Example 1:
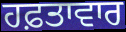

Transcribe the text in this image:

ਹਫ਼ਤਾਵਾਰ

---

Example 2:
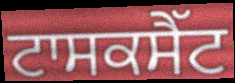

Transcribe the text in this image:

ਟਾਸਕਸੈੱਟ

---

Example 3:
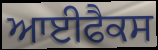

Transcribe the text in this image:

ਆਈਫੈਕਸ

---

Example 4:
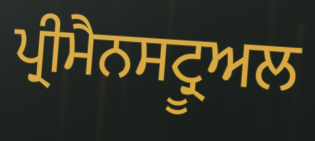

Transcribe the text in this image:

ਪ੍ਰੀਮੈਨਸਟ੍ਰੂਅਲ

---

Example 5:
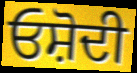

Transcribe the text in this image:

ਓਸ਼ੋਦੀ